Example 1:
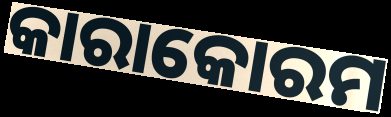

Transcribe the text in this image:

କାରାକୋରମ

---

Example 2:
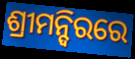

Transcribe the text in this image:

ଶ୍ରୀମନ୍ଦିରରେ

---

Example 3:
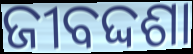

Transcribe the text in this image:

ଜୀବଦ୍ଦଶା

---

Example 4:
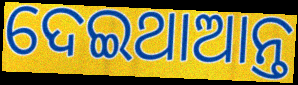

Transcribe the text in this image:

ଦେଇଥାଆନ୍ତ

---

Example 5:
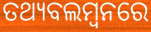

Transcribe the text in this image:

ତଥ୍ୟବଲମ୍ବନରେ